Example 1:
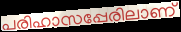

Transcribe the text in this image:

പരിഹാസപ്പേരിലാണ്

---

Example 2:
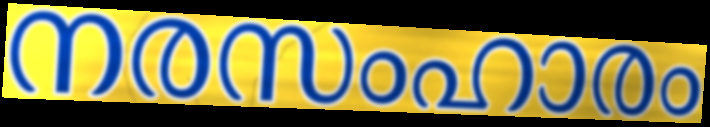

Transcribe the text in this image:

നരസംഹാരം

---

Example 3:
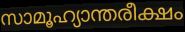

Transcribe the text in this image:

സാമൂഹ്യാന്തരീക്ഷം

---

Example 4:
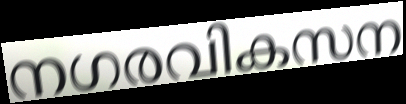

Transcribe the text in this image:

നഗരവികസന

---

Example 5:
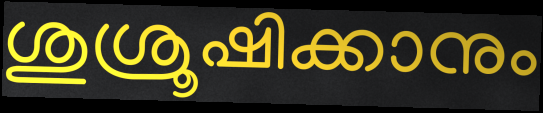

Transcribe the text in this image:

ശുശ്രൂഷിക്കാനും